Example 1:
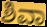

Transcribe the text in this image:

ಶಿವಾ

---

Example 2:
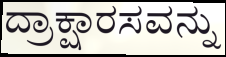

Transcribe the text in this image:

ದ್ರಾಕ್ಷಾರಸವನ್ನು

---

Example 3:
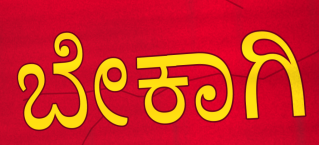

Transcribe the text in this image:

ಬೇಕಾಗಿ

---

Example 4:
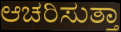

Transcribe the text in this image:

ಆಚರಿಸುತ್ತಾ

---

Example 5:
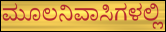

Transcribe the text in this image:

ಮೂಲನಿವಾಸಿಗಳಲ್ಲಿ